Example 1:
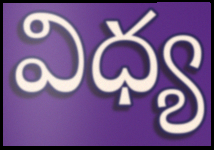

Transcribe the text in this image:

విధ్య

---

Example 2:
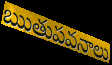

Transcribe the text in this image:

ఋతుపవనాలు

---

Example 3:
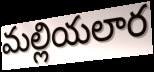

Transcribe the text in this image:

మల్లియలార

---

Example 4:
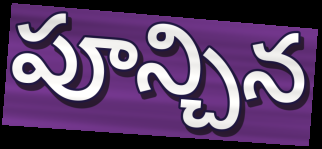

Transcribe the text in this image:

పూన్చిన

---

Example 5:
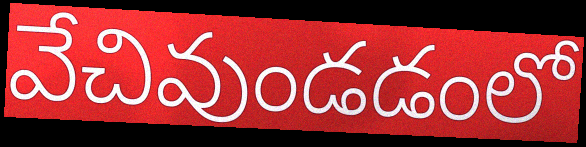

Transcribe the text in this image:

వేచివుండడంలో